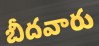
బీదవారు